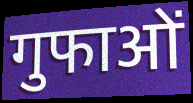
गुफाओं